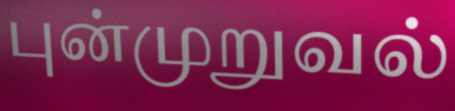
புன்முறுவல்